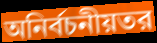
অনির্বচনীয়তর